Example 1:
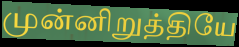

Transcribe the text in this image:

முன்னிறுத்தியே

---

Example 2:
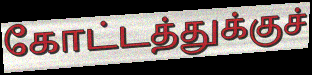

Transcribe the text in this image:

கோட்டத்துக்குச்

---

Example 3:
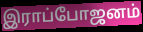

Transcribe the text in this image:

இராப்போஜனம்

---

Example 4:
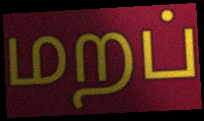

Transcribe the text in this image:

மறப்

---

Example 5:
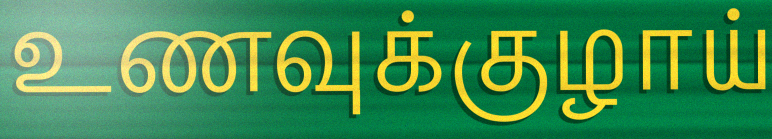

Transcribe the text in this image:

உணவுக்குழாய்